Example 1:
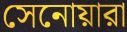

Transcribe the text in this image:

সেনোয়ারা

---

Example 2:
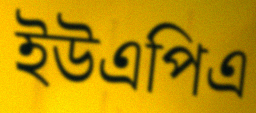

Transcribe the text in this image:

ইউএপিএ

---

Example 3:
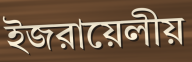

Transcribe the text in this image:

ইজরায়েলীয়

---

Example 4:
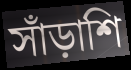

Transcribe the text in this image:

সাঁড়াশি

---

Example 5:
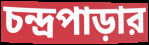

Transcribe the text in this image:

চন্দ্রপাড়ার